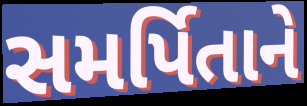
સમર્પિતાને